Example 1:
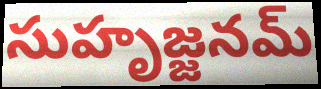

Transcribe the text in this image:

సుహృజ్జనమ్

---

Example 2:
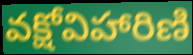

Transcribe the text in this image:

వక్షోవిహారిణి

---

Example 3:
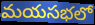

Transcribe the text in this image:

మయసభలో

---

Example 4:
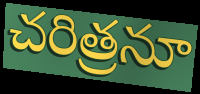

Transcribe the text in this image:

చరిత్రనూ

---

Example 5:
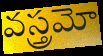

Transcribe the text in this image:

వస్త్రమో